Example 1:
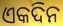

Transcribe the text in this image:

ଏକଦିନ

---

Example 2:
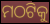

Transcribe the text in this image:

ମଠଟିକୁ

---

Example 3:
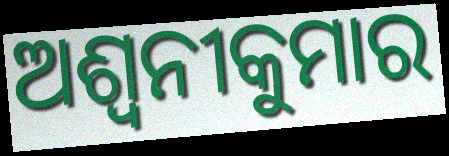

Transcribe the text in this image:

ଅଶ୍ୱନୀକୁମାର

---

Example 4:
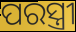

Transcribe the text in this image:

ପରସ୍ତ୍ରୀ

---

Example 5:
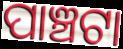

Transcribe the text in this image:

ପାଞ୍ଚଟା